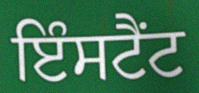
ਇੰਸਟੈਂਟ